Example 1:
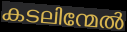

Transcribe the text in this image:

കടലിന്മേൽ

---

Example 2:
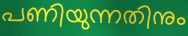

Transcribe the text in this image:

പണിയുന്നതിനും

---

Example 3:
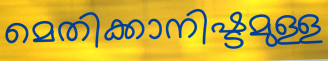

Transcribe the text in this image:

മെതിക്കാനിഷ്ടമുള്ള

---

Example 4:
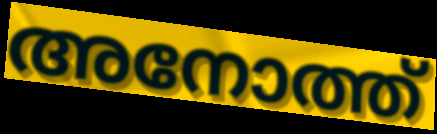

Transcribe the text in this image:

അനോത്ത്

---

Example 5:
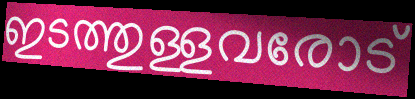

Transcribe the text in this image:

ഇടത്തുള്ളവരോട്